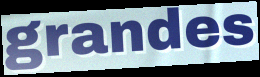
grandes